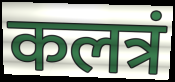
कलत्रं